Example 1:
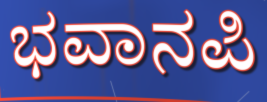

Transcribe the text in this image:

ಭವಾನಪಿ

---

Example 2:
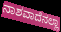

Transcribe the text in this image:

ನಾಶವಾದೆನಲ್ಲಾ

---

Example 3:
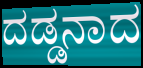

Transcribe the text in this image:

ದಡ್ಡನಾದ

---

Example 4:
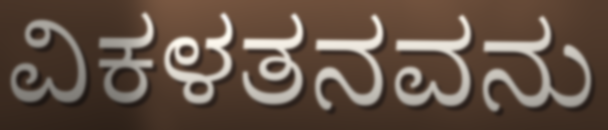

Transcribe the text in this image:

ವಿಕಳತನವನು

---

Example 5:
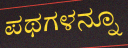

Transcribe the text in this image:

ಪಥಗಳನ್ನೂ